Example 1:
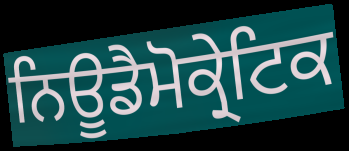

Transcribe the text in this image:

ਨਿਊਡੈਮੋਕ੍ਰੇਟਿਕ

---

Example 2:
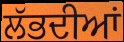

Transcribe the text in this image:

ਲੱਭਦੀਆਂ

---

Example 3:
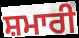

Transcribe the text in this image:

ਸ਼ਮਾਰੀ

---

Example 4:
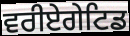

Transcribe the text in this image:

ਵਰੀਏਗੇਟਿਡ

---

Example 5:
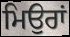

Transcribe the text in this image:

ਮਿਉਰਾਂ